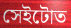
সেইটোত